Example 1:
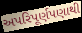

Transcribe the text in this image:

અપરિપૂર્ણપણાથી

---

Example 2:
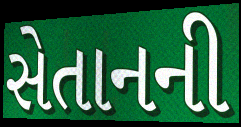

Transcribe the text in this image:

સેતાનની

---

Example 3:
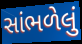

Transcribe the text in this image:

સાંભળેલું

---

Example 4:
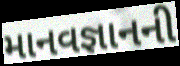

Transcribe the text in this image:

માનવજ્ઞાનની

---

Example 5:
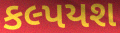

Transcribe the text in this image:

કલ્પયશ